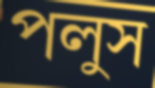
পলুস